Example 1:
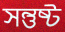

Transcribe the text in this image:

সন্তুষ্ট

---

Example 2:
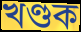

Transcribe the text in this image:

খণ্ডক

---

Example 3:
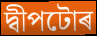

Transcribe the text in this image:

দ্বীপটোৰ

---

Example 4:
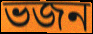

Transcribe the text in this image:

ভজন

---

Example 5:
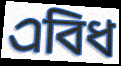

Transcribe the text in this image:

এবিধ